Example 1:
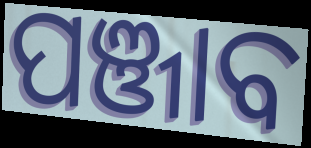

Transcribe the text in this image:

ପଞ୍ଜାବ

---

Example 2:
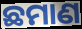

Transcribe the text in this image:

ଛମାଣ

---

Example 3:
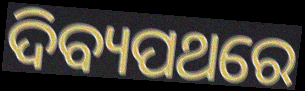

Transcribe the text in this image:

ଦିବ୍ୟପଥରେ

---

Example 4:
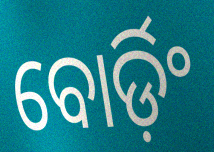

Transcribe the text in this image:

ବୋର୍ଡ଼ିଂ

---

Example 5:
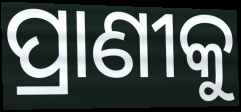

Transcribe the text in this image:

ପ୍ରାଣୀକୁ